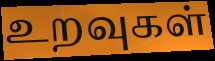
உறவுகள்